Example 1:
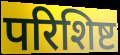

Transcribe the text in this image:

परिशिष्ट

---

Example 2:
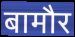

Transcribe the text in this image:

बामौर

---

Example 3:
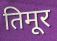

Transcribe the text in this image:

तिमूर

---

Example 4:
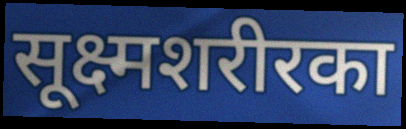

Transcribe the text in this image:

सूक्ष्मशरीरका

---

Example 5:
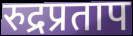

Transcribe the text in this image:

रुद्रप्रताप